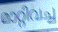
മാറ്റിവച്ച